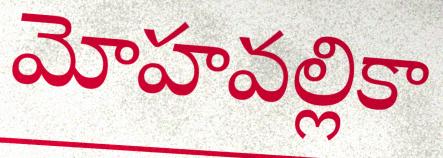
మోహవల్లికా